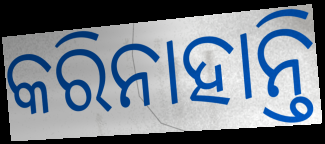
କରିନାହାନ୍ତି